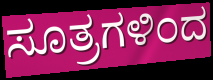
ಸೂತ್ರಗಳಿಂದ